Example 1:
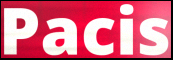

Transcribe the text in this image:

Pacis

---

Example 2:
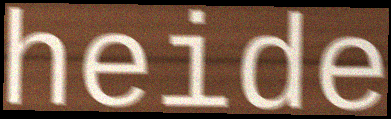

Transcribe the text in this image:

heide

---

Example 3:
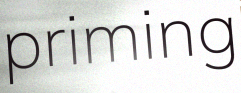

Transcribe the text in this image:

priming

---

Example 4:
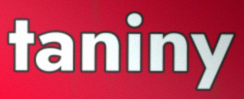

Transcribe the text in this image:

taniny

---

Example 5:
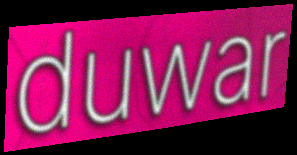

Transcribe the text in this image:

duwar